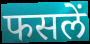
फसलें